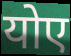
योए